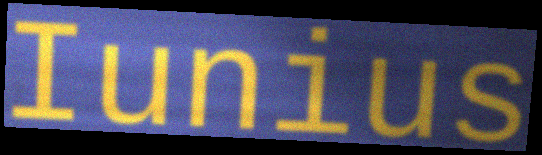
Iunius